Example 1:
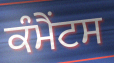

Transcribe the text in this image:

ਕੰਮੈਂਟਸ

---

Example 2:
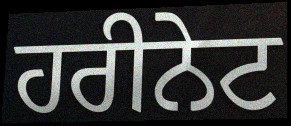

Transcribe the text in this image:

ਹਰੀਨੇਟ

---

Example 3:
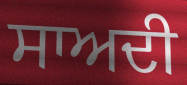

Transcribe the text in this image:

ਸਾਅਦੀ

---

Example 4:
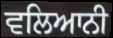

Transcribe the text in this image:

ਵਲਿਆਨੀ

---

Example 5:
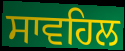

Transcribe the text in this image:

ਸਾਵਹਿਲ